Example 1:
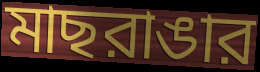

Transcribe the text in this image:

মাছরাঙার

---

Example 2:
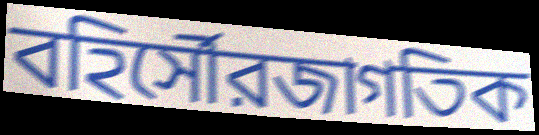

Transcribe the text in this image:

বহির্সৌরজাগতিক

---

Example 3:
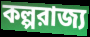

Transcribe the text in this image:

কল্পরাজ্য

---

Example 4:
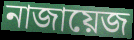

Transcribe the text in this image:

নাজায়েজ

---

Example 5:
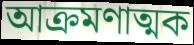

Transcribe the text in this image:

আক্রমণাত্মক